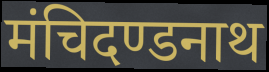
मंचिदण्डनाथ